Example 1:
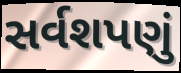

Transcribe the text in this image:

સર્વશપણું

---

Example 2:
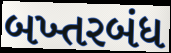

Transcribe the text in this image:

બખ્તરબંધ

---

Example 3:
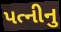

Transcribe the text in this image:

પત્નીનુ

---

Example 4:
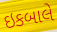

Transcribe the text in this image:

ઇકબાલે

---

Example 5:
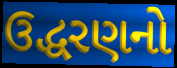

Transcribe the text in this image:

ઉદ્ધરણનો